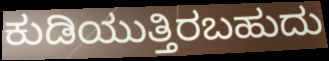
ಕುಡಿಯುತ್ತಿರಬಹುದು